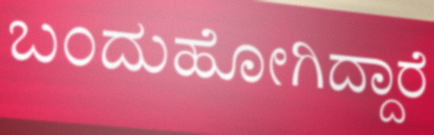
ಬಂದುಹೋಗಿದ್ದಾರೆ